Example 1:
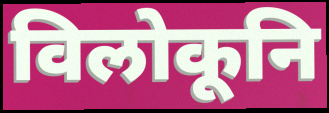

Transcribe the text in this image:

विलोकूनि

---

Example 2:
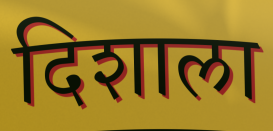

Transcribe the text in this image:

दिशाला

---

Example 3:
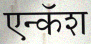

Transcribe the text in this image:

एन्कॅश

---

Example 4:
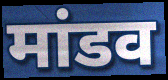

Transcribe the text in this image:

मांडव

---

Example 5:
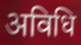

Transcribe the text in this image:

अविधि